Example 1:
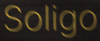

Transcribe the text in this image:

Soligo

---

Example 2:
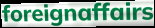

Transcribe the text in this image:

foreignaffairs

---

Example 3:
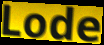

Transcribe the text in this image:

Lode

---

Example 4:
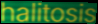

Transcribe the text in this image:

halitosis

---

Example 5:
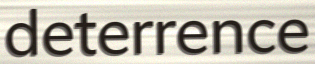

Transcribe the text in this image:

deterrence